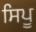
ਸਿਪੂ